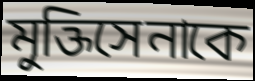
মুক্তিসেনাকে